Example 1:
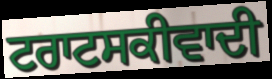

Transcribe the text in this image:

ਟਰਾਟਸਕੀਵਾਦੀ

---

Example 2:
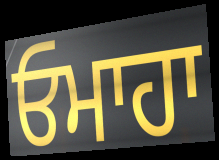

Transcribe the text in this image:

ਓਮਾਹਾ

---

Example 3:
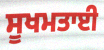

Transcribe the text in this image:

ਸੂਖਮਤਾਈ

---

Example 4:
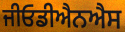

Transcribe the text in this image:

ਜੀਓਡੀਐਨਐਸ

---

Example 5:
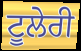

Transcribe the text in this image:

ਟੂਲੇਰੀ